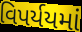
વિપર્યયમાં